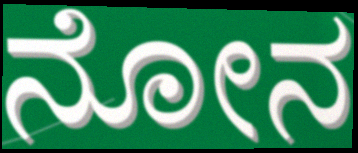
ನೋನ